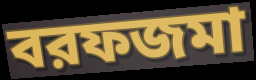
বরফজমা